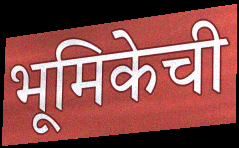
भूमिकेची